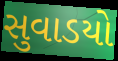
સુવાડયો